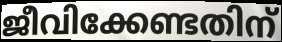
ജീവിക്കേണ്ടതിന്